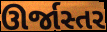
ઊર્જાસ્તર